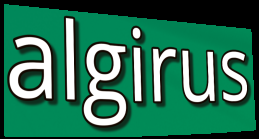
algirus